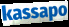
kassapo